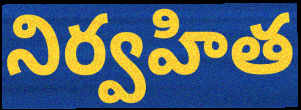
నిర్వహిత